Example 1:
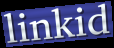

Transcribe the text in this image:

linkid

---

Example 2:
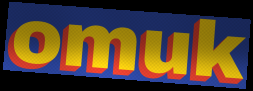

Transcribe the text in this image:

omuk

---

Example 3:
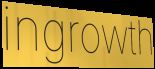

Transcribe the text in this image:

ingrowth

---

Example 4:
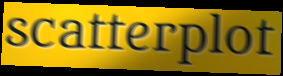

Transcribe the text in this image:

scatterplot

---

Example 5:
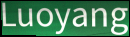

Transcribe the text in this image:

Luoyang